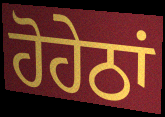
ਹੋਹੇਠਾਂ